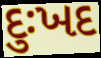
દુઃખદ